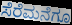
ಸೆರೆಮನೆಗೂ